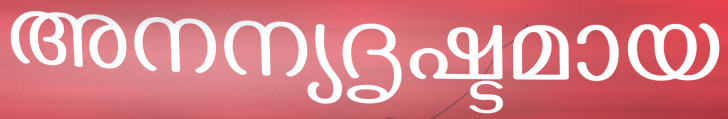
അനന്യദൃഷ്ടമായ